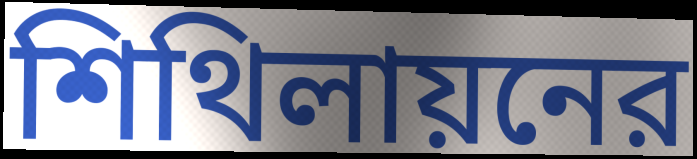
শিথিলায়নের